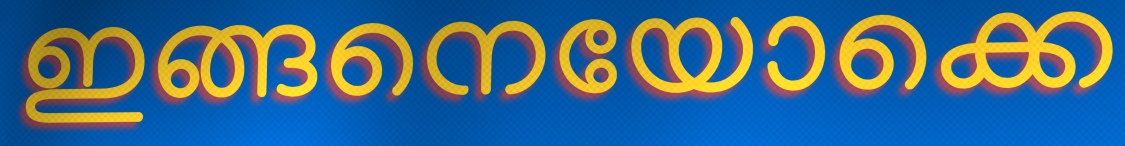
ഇങ്ങനെയോക്കെ